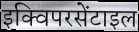
इक्विपरसेंटाइल